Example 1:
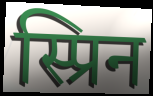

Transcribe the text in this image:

स्प्रिन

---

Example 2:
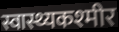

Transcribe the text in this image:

स्वास्थ्यकश्‍मीर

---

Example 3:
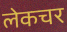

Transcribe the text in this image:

लेकचर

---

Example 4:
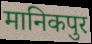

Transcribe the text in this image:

मानिकपुर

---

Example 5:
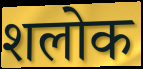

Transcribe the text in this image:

शलोक